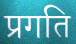
प्रगति